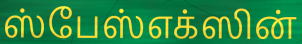
ஸ்பேஸ்எக்ஸின்